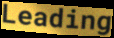
Leading